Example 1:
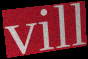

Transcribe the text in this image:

vill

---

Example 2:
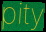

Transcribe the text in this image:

pity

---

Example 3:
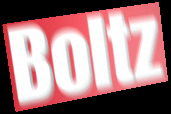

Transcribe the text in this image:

Boltz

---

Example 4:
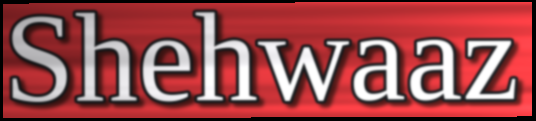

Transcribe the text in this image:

Shehwaaz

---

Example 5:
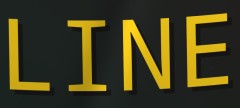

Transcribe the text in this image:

LINE